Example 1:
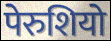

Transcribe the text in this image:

पेरुशियो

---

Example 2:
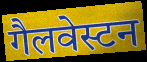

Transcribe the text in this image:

गैलवेस्टन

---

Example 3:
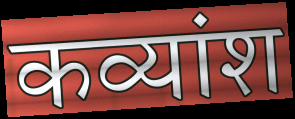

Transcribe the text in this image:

कव्यांश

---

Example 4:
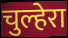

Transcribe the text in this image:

चुल्हेरा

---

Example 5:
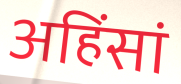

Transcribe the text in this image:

अहिंसां